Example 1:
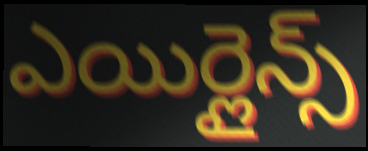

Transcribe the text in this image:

ఎయిర్లైన్స్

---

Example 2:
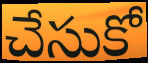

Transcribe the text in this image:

చేసుకో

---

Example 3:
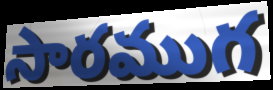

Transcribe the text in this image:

సారముగ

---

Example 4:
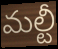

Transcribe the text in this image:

మల్టీ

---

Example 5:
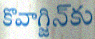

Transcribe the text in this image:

కొవాగ్జిన్‌కు